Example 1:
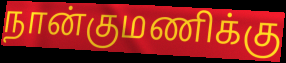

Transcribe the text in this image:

நான்குமணிக்கு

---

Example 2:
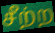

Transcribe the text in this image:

சீற்ற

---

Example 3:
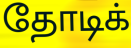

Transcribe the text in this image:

தோடிக்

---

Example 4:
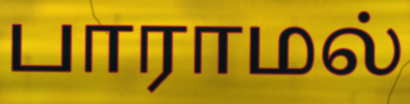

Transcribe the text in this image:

பாராமல்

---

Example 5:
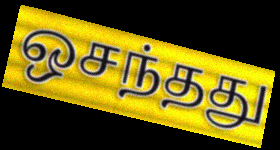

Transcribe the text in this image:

ஒசந்தது